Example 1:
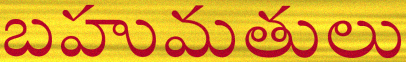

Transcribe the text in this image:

బహుమతులు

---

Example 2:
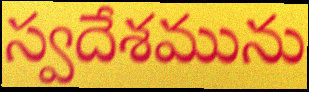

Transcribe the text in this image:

స్వదేశమును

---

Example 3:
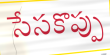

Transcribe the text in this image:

సేసకొప్పు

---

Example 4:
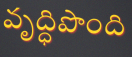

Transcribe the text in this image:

వృద్ధిపొంది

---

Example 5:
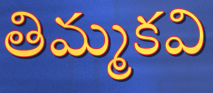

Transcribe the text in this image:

తిమ్మకవి